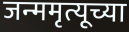
जन्ममृत्यूच्या